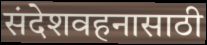
संदेशवहनासाठी